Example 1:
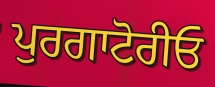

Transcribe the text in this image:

ਪੁਰਗਾਟੋਰੀਓ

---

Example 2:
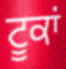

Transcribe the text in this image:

ਟੂਕਾਂ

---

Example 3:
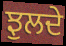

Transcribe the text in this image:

ਝੁਲਦੇ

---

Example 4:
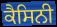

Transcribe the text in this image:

ਕੈਸਿਨੀ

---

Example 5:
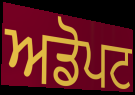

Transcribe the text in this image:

ਅਡੋਪਟ